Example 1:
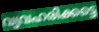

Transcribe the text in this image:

വ്യവഹരിക്കട്ടെ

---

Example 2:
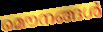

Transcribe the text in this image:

മൌനങ്ങൾ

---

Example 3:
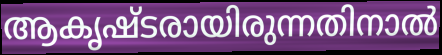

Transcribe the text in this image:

ആകൃഷ്ടരായിരുന്നതിനാൽ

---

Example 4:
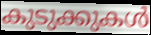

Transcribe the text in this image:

കുടുക്കുകൾ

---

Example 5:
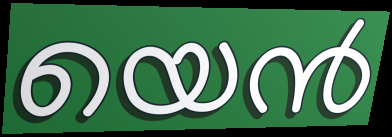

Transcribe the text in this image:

യെൻ